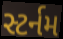
સ્ટર્નમ